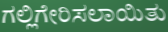
ಗಲ್ಲಿಗೇರಿಸಲಾಯಿತು